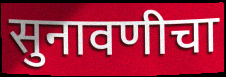
सुनावणीचा